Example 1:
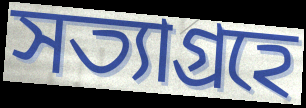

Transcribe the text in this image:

সত্যাগ্রহে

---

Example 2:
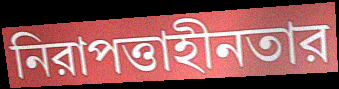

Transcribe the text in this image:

নিরাপত্তাহীনতার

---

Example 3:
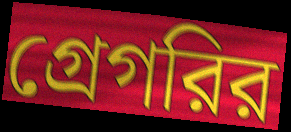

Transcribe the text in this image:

গ্রেগরির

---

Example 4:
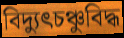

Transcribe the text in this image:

বিদ্যুৎচঞ্চুবিদ্ধ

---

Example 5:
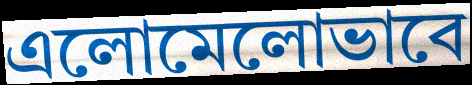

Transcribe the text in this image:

এলোমেলোভাবে